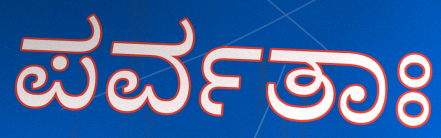
ಪರ್ವತಾಃ